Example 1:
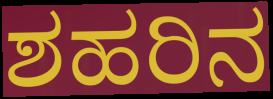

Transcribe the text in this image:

ಶಹರಿನ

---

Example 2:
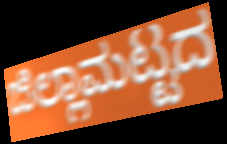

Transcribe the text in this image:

ಜಿಲ್ಲಾಮಟ್ಟದ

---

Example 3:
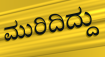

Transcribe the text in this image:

ಮುರಿದಿದ್ದು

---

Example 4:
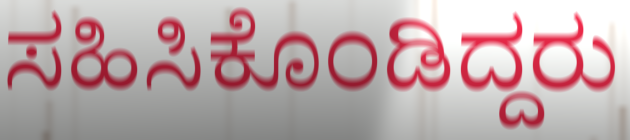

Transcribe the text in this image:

ಸಹಿಸಿಕೊಂಡಿದ್ದರು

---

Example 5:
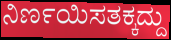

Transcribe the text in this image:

ನಿರ್ಣಯಿಸತಕ್ಕದ್ದು